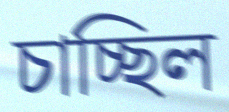
চাচ্ছিল